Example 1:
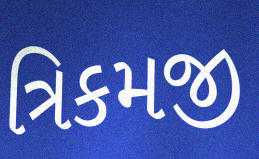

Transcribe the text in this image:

ત્રિકમજી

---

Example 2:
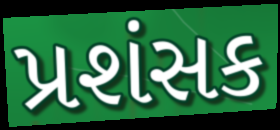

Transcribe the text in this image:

પ્રશંસક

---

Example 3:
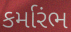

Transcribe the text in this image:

કર્મારંભ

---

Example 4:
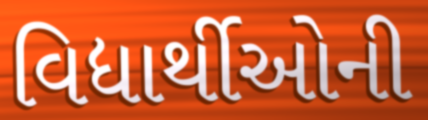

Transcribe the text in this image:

વિદ્યાર્થીઓની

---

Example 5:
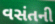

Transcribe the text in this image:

વસંતની